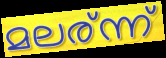
മലര്ന്ന്